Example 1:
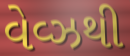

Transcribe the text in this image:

વેવ્ઝથી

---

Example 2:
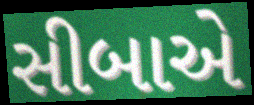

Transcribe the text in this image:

સીબાએ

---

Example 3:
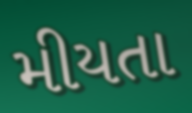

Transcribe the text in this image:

મીયતા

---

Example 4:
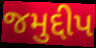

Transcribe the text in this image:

જમુદ્દીપ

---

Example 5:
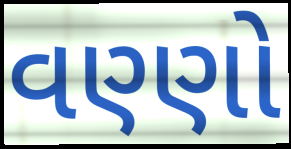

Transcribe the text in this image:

વણ્ણો